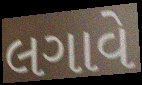
લગાવે